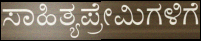
ಸಾಹಿತ್ಯಪ್ರೇಮಿಗಳಿಗೆ